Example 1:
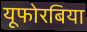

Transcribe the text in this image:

यूफोरबिया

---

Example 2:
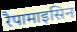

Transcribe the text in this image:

रैपामाइसिन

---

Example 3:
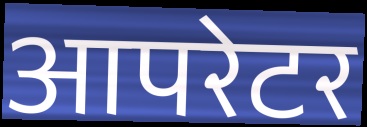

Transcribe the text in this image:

आपरेटर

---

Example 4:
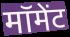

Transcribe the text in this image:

मॉमेंट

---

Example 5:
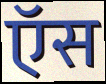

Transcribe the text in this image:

ऍस